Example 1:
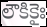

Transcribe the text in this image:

లౌకికైః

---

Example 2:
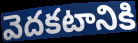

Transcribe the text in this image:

వెదకటానికి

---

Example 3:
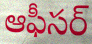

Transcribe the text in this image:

ఆఫీసర్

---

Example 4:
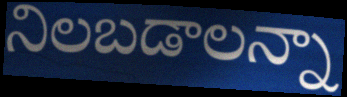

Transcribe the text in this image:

నిలబడాలన్నా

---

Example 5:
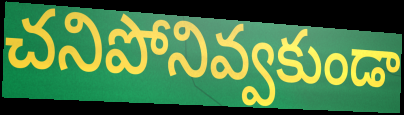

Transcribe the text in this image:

చనిపోనివ్వకుండా